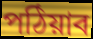
পঠিয়াব